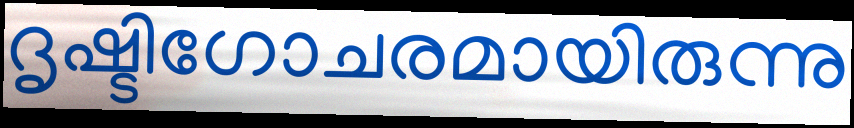
ദൃഷ്ടിഗോചരമായിരുന്നു